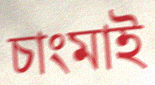
চাংমাই